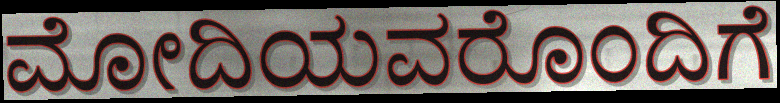
ಮೋದಿಯವರೊಂದಿಗೆ